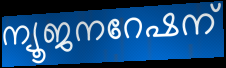
ന്യൂജനറേഷന്